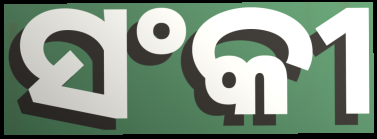
ସଂକୀ